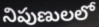
నిపుణులలో